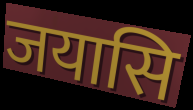
जयासि